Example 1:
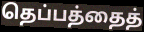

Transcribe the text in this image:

தெப்பத்தைத்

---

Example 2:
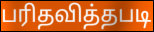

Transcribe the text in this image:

பரிதவித்தபடி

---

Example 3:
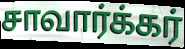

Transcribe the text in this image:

சாவார்க்கர்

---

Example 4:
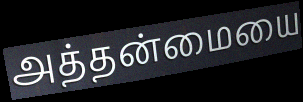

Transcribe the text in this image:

அத்தன்மையை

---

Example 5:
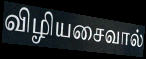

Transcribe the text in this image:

விழியசைவால்